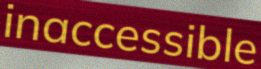
inaccessible